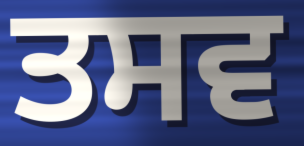
ਤਸਵ